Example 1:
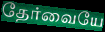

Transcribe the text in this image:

தேர்வையே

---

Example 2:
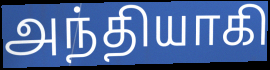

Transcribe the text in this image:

அந்தியாகி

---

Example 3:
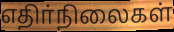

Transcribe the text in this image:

எதிர்நிலைகள்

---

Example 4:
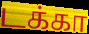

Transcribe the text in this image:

டக்கா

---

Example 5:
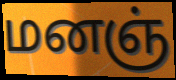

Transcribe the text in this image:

மனஞ்